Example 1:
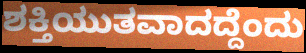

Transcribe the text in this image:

ಶಕ್ತಿಯುತವಾದದ್ದೆಂದು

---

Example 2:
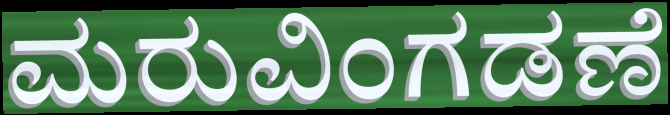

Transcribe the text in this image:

ಮರುವಿಂಗಡಣೆ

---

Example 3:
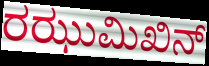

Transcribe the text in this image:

ರಝುಮಿಖಿನ್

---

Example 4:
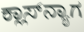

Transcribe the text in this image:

ಕ್ಲಾಸ್‌ನ್ಯಾಗ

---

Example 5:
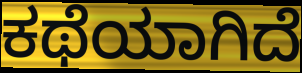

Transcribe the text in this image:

ಕಥೆಯಾಗಿದೆ